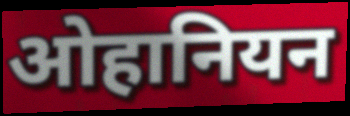
ओहानियन